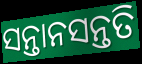
ସନ୍ତାନସନ୍ତତି